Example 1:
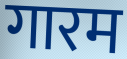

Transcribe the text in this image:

गारम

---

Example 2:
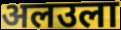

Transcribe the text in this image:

अलउला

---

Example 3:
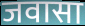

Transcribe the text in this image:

जवासा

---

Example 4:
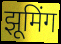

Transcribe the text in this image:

झूमिंग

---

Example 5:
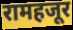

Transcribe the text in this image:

रामहजूर